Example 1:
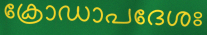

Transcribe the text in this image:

ക്രോഡാപദേശഃ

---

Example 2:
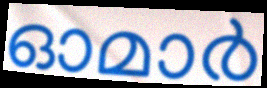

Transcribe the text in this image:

ഓമാർ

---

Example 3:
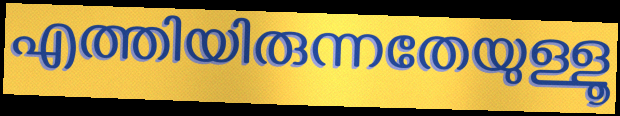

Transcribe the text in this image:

എത്തിയിരുന്നതേയുള്ളൂ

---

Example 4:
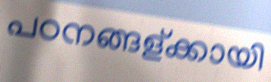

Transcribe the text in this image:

പഠനങ്ങള്ക്കായി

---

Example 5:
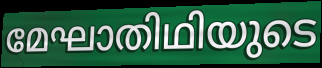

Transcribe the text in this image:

മേഘാതിഥിയുടെ